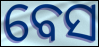
ବେସ